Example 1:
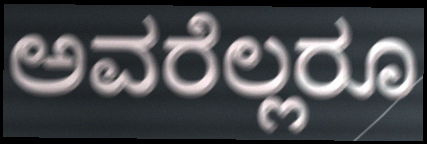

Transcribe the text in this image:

ಅವರೆಲ್ಲರೂ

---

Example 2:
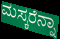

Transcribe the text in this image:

ಮಸ್ಕರೆನ್ನಾ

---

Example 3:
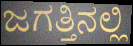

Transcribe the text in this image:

ಜಗತ್ತಿನಲ್ಲಿ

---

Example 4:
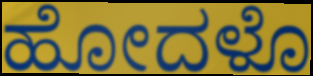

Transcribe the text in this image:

ಹೋದಳೊ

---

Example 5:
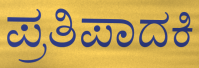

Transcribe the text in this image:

ಪ್ರತಿಪಾದಕಿ